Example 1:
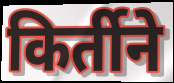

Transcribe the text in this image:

किर्तीने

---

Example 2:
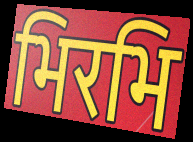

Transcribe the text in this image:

भिरभि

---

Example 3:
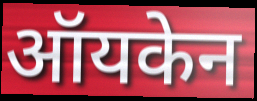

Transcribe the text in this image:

ऑयकेन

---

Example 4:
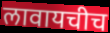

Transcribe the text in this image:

लावायचीच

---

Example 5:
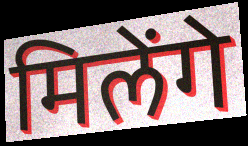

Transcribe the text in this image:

मिलेंगे